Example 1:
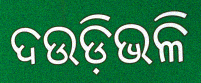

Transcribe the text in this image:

ଦଉଡ଼ିଭଳି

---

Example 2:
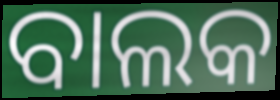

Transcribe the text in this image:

ବାଲକ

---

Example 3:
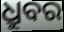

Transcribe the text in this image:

ଧ୍ରୁବର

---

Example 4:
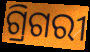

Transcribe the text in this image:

ଗ୍ରିଗରୀ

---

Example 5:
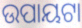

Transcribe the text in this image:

ଉପାୟଟା